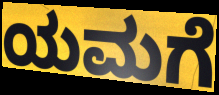
ಯಮಗೆ